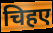
चिहए